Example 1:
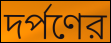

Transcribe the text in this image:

দর্পণের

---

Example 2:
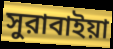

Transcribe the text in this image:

সুরাবাইয়া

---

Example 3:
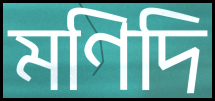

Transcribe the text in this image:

মণিদি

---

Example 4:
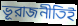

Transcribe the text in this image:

ভূরাজনীতিই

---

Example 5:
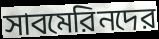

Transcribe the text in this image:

সাবমেরিনদের